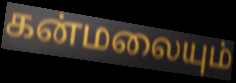
கன்மலையும்